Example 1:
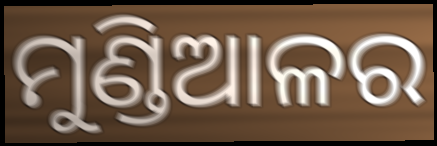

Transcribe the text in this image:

ମୁଣ୍ଡିଆଳର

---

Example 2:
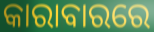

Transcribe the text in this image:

କାରାବାରରେ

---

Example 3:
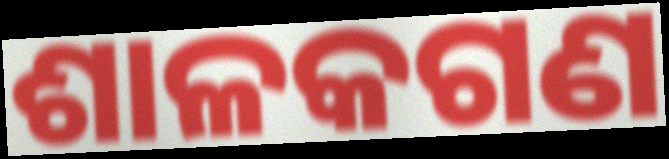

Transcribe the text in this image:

ଶାଳକଗଣ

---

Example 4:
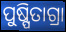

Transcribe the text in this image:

ପୁଷ୍ପିତାଗ୍ରା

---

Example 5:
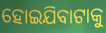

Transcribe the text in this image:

ହୋଇଯିବାଟାକୁ